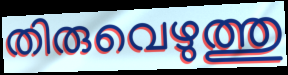
തിരുവെഴുത്തു